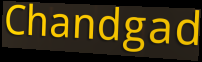
Chandgad